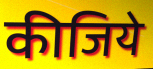
कीजिये